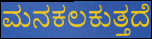
ಮನಕಲಕುತ್ತದೆ